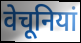
वेचूनियां